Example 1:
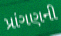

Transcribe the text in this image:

પ્રાંગણની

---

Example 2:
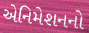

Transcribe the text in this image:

એનિમેશનનો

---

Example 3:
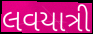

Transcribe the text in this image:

લવયાત્રી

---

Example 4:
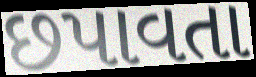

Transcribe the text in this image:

છપાવતા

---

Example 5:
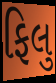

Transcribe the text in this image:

ફિલુ